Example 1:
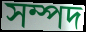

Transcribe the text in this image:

সম্পদ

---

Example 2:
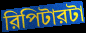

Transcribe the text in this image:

রিপিটারটা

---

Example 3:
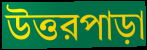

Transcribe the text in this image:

উত্তরপাড়া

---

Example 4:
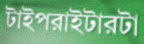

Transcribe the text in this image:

টাইপরাইটারটা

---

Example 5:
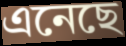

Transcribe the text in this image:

এনেছে